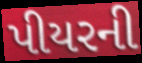
પીયરની